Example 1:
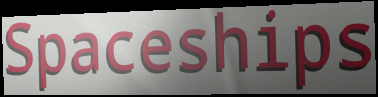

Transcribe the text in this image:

Spaceships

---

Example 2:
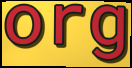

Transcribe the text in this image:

org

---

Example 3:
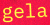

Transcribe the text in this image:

gela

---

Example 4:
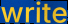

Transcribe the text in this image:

write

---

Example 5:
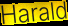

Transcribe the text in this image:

Harald